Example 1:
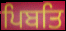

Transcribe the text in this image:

ਪਿਬਤਿ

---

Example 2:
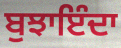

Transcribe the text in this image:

ਬੁਝਾਇੰਦਾ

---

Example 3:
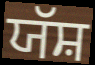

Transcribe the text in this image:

ਯੱਸ਼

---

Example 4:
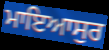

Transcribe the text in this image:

ਮਾਇਆਸੁਰ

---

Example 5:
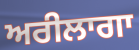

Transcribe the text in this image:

ਅਰੀਲਾਗਾ